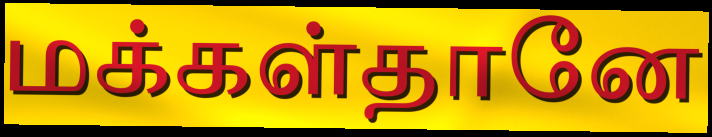
மக்கள்தானே